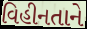
વિહીનતાને